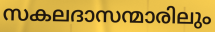
സകലദാസന്മാരിലും